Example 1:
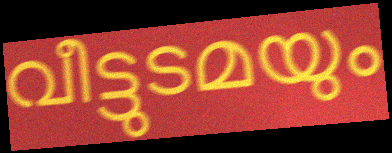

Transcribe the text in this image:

വീട്ടുടമയും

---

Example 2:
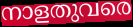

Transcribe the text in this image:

നാളതുവരെ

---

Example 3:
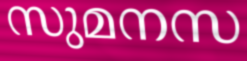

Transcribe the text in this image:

സുമനസ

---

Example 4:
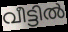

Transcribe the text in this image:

വീട്ടിൽ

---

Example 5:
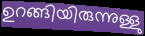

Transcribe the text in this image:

ഉറങ്ങിയിരുന്നുള്ളു